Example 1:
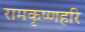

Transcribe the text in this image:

रामकृष्णहरि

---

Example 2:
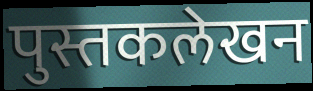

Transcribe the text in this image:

पुस्तकलेखन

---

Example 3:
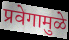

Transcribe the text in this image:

प्रवेगामुळे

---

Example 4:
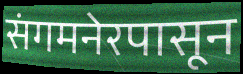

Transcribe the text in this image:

संगमनेरपासून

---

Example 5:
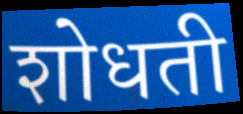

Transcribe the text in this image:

शोधती